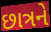
છાત્રને